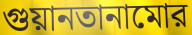
গুয়ানতানামোর